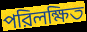
পরিলক্ষিত